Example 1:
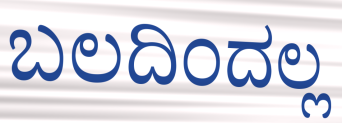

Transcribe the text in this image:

ಬಲದಿಂದಲ್ಲ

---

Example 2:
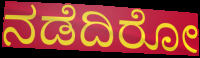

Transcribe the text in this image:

ನಡೆದಿರೋ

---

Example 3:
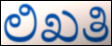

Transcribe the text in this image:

ಲಿಖತಿ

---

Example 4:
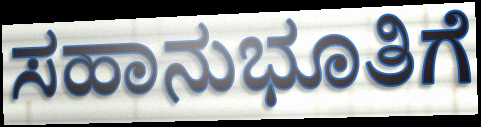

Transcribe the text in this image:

ಸಹಾನುಭೂತಿಗೆ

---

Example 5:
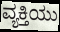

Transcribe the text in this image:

ವ್ಯಕ್ತಿಯು